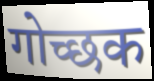
गोच्छक